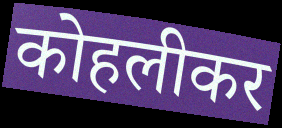
कोहलीकर